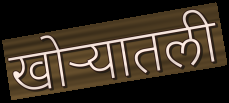
खोऱ्यातली